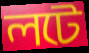
লটে